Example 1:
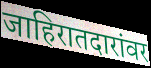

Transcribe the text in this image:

जाहिरातदारांवर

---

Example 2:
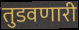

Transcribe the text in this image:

तुडवणारी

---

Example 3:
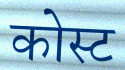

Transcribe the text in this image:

कोस्ट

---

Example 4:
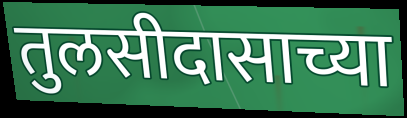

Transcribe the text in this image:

तुलसीदासाच्या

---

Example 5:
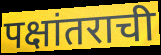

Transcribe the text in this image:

पक्षांतराची